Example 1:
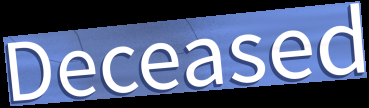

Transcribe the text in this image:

Deceased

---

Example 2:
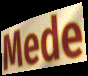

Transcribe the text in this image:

Mede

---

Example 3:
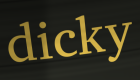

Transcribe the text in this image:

dicky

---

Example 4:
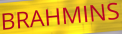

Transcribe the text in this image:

BRAHMINS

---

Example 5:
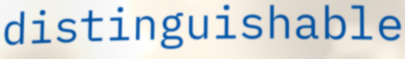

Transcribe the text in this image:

distinguishable